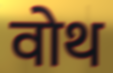
वोथ